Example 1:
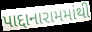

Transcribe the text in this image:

પાદ્દાનારામમાંથી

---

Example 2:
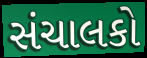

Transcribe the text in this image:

સંચાલકો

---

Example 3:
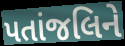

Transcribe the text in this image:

પતાંજલિને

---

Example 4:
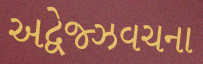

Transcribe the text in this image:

અદ્વેજ્ઝવચના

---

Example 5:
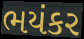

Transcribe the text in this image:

ભયંકર